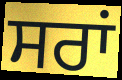
ਸਰਾਂ